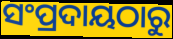
ସଂପ୍ରଦାୟଠାରୁ